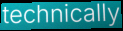
technically